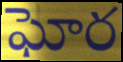
ఘోర